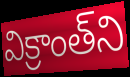
విక్రాంత్‌ని